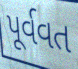
પૂર્વવત